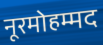
नूरमोहम्मद